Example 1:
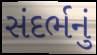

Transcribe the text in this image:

સંદર્ભનું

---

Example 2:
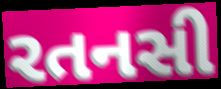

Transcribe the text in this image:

રતનસી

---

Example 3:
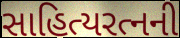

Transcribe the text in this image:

સાહિત્યરત્નની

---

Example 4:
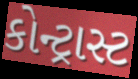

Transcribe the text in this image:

કોન્ટ્રાસ્ટ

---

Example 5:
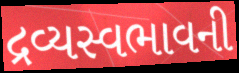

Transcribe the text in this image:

દ્રવ્યસ્વભાવની